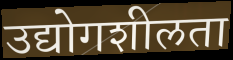
उद्योगशीलता